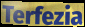
Terfezia